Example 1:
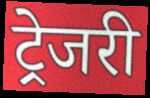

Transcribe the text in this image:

ट्रेजरी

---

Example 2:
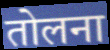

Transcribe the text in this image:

तोलना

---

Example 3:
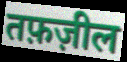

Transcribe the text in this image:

तफ़ज़ील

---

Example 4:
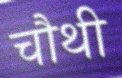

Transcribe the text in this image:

चौथी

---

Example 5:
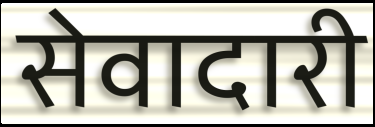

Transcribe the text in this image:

सेवादारी